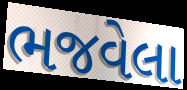
ભજવેલા